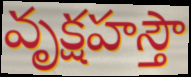
వృక్షహస్తౌ